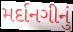
મર્દાનગીનું